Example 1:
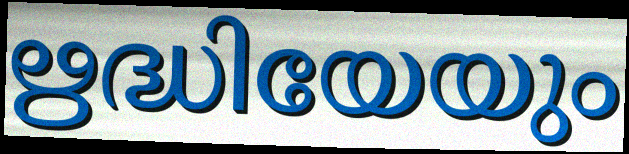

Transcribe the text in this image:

ഋദ്ധിയേയും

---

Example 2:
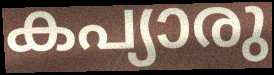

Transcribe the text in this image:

കപ്യാരു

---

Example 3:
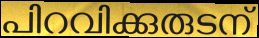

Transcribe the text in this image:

പിറവിക്കുരുടന്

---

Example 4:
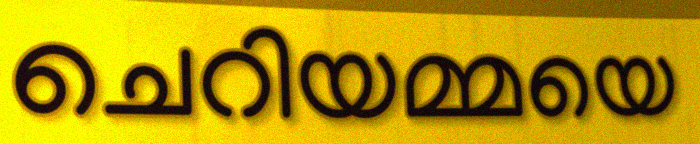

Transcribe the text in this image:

ചെറിയമ്മയെ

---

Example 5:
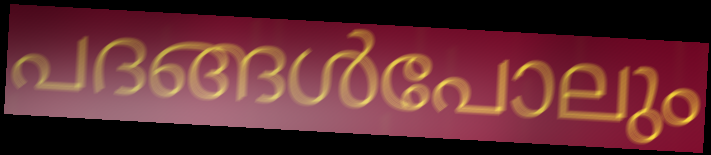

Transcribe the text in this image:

പദങ്ങൾപോലും